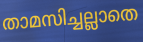
താമസിച്ചല്ലാതെ